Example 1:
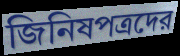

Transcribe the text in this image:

জিনিষপত্রদের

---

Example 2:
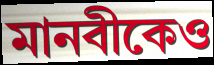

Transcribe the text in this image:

মানবীকেও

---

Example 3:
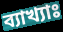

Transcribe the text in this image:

ব্যাখ্যাঃ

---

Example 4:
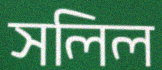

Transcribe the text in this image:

সলিল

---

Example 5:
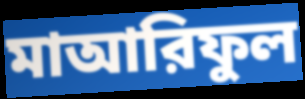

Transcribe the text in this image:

মাআরিফুল